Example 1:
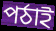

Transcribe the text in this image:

পঠাই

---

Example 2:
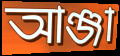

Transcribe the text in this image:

আঞ্জা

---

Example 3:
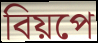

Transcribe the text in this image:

বিয়পে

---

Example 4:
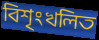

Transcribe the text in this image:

বিশৃংখলিত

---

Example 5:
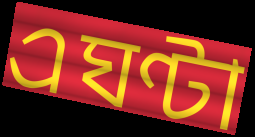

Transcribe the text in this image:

এঘণ্টা